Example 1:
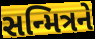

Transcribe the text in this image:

સન્મિત્રને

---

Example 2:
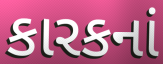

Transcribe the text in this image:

કારકનાં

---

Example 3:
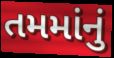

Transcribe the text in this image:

તમમાંનું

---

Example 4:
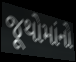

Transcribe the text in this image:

જૂથોમાંનો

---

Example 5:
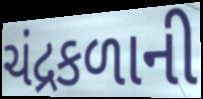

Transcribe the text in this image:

ચંદ્રકળાની